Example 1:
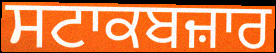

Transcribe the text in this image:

ਸਟਾਕਬਜ਼ਾਰ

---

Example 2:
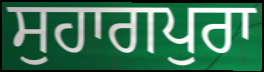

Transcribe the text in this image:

ਸੁਹਾਗਪੁਰਾ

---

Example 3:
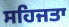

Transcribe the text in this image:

ਸਹਿਜਤਾ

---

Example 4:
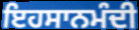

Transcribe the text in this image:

ਇਹਸਾਨਮੰਦੀ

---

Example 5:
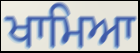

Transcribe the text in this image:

ਖਾਮਿਆ